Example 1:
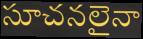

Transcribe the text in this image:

సూచనలైనా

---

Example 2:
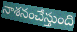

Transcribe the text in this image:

నాశనంచేస్తుంది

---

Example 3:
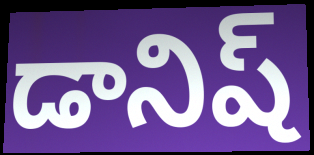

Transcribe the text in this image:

డానిష్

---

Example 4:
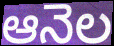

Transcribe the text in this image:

ఆనెల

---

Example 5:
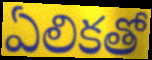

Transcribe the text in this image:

ఏలికతో